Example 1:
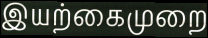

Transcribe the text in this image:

இயற்கைமுறை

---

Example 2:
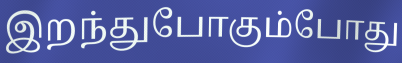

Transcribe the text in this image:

இறந்துபோகும்போது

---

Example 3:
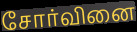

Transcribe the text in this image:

சோர்வினை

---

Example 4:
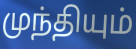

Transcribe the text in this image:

முந்தியும்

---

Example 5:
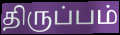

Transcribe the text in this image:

திருப்பம்